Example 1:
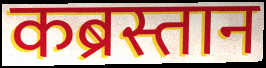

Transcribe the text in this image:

कब्रस्तान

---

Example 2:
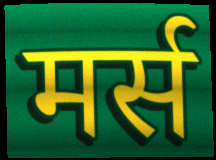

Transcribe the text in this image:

मर्स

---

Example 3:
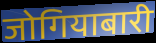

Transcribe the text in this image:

जोगियाबारी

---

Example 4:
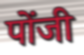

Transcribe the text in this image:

पोंजी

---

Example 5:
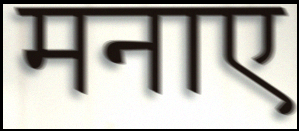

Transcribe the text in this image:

मनाए